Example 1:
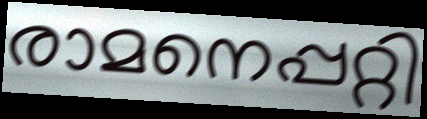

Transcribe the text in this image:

രാമനെപ്പറ്റി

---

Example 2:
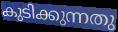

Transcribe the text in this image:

കുടിക്കുന്നതു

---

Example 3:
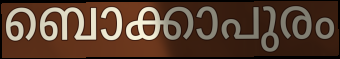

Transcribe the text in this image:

ബൊക്കാപുരം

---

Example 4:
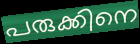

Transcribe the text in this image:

പരുക്കിനെ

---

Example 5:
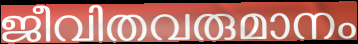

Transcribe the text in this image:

ജീവിതവരുമാനം